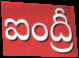
ఐంద్రీ